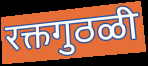
रक्तगुठळी